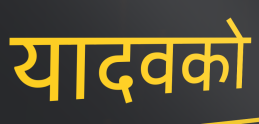
यादवको